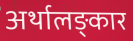
अर्थालङ्कार